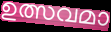
ഉത്സവമാ